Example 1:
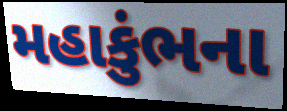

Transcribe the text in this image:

મહાકુંભના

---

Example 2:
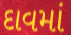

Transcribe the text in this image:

દાવમાં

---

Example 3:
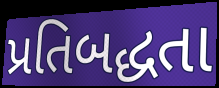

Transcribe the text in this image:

પ્રતિબદ્ધતા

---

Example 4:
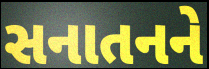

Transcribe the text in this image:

સનાતનને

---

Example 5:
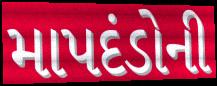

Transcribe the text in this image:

માપદંડોની